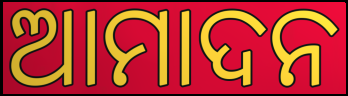
ଆମାଦନ